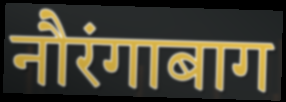
नौरंगाबाग